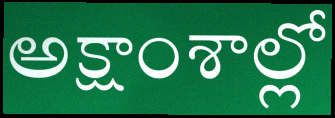
అక్షాంశాల్లో